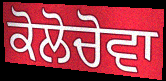
ਕੋਲੋਚੋਵਾ